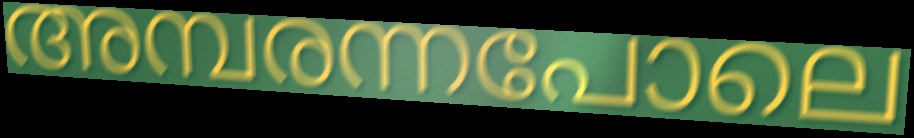
അമ്പരന്നപോലെ